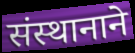
संस्थानाने